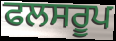
ਫਲਸਰੂਪ